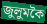
জুলুমকৈ